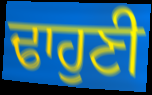
ਢਾਹੁਣੀ